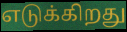
எடுக்கிறது